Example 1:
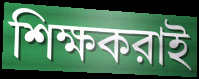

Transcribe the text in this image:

শিক্ষকরাই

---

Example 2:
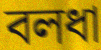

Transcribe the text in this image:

বলধা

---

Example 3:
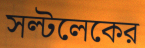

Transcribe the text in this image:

সল্টলেকের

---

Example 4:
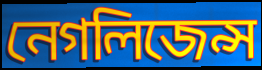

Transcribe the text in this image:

নেগলিজেন্স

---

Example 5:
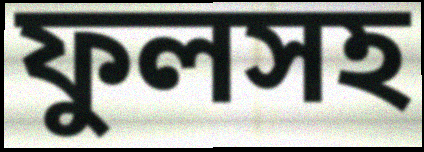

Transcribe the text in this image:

ফুলসহ